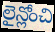
లైన్లోంచి